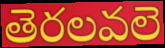
తెరలవలె